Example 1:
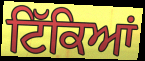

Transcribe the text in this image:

ਟਿੱਕਿਆਂ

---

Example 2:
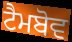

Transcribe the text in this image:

ਟੈਮਬੋਵ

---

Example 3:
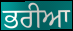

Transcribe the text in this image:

ਭਰੀਆ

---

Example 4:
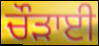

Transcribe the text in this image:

ਚੌੜਾਈ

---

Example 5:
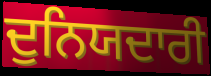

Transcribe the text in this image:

ਦੁਨਿਯਦਾਰੀ